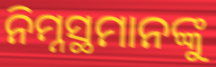
ନିମ୍ନସ୍ଥମାନଙ୍କୁ